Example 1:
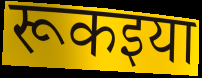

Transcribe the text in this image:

रूकइया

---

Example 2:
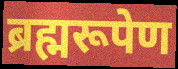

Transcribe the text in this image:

ब्रह्मरूपेण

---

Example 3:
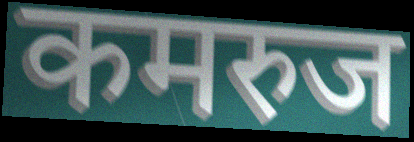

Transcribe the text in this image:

कमरुज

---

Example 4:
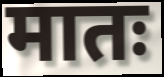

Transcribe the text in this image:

मातः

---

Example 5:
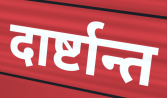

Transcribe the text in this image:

दार्ष्टान्त